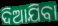
ଦିଆଯିବା